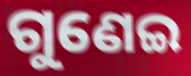
ଗୁଣେଇ